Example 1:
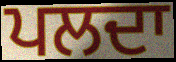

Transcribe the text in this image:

ਪਲਦਾ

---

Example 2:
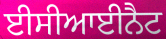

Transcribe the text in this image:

ਈਸੀਆਈਨੈਟ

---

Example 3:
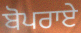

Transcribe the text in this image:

ਬੋਪਰਾਏ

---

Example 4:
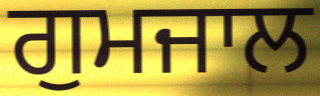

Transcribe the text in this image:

ਗੁਮਜਾਲ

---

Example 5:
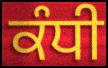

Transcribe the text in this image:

ਕੰਧੀ